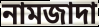
নামজাদা